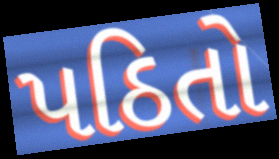
પઠિતો